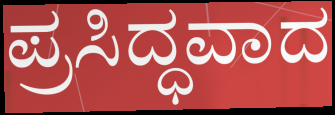
ಪ್ರಸಿದ್ಧವಾದ